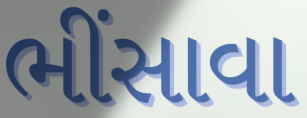
ભીંસાવા